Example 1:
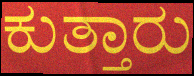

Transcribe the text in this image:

ಕುತ್ತಾರು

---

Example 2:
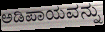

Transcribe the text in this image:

ಅಡಿಪಾಯವನ್ನು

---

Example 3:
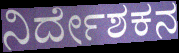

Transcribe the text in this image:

ನಿರ್ದೇಶಕನ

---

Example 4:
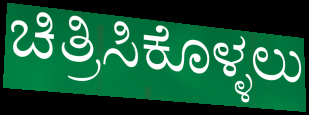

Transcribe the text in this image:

ಚಿತ್ರಿಸಿಕೊಳ್ಳಲು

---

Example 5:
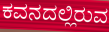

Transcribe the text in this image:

ಕವನದಲ್ಲಿರುವ